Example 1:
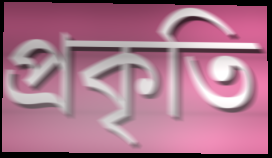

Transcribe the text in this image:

প্ৰকৃতি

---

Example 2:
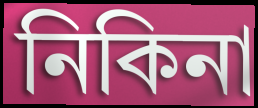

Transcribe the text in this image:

নিকিনা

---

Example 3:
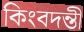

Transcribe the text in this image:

কিংবদন্তী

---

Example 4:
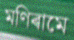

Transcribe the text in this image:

মণিৰামে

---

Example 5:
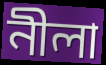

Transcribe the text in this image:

নীলা